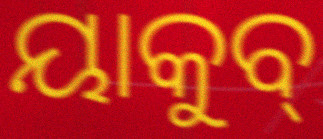
ୟାକୁବ୍